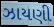
ઝાયણી